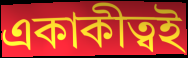
একাকীত্বই